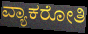
ವ್ಯಾಕರೋತಿ